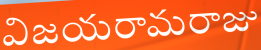
విజయరామరాజు